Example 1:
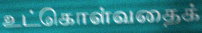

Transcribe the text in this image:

உட்கொள்வதைக்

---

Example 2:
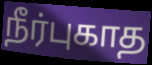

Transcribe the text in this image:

நீர்புகாத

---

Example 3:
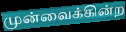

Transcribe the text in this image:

முன்வைக்கின்ற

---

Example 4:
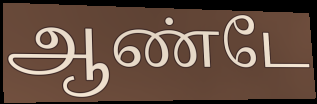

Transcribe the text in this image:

ஆண்டே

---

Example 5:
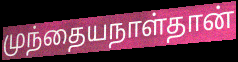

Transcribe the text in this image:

முந்தையநாள்தான்